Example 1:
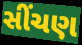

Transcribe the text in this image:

સીંચણ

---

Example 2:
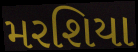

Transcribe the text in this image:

મરશિયા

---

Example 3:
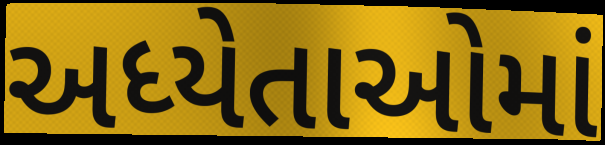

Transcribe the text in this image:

અધ્યેતાઓમાં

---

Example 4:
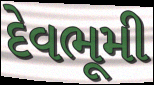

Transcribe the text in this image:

દેવભૂમી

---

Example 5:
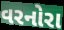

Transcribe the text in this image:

વરનોરા